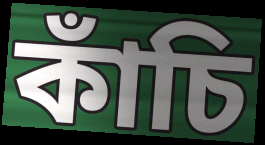
কাঁচি